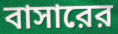
বাসারের